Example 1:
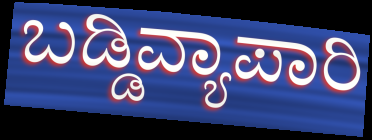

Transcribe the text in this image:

ಬಡ್ಡಿವ್ಯಾಪಾರಿ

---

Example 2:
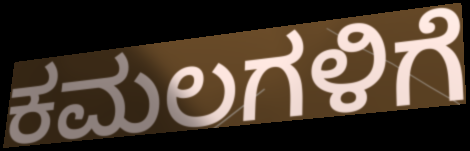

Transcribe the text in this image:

ಕಮಲಗಳಿಗೆ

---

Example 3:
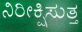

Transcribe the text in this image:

ನಿರೀಕ್ಷಿಸುತ್ತ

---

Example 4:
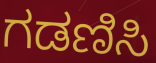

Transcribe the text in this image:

ಗಡಣಿಸಿ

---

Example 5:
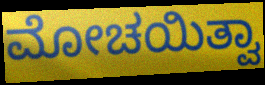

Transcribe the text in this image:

ಮೋಚಯಿತ್ವಾ